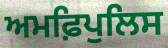
ਅਮਫ਼ਿਪੁਲਿਸ